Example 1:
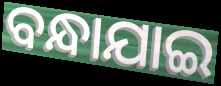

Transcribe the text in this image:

ବନ୍ଧାଯାଇ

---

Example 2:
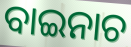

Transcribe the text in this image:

ବାଇନାଚ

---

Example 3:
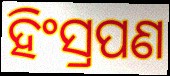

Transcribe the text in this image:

ହିଂସ୍ରପଣ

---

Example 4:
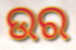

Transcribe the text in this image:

ଉର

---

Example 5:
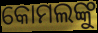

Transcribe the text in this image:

କୋମଲଙ୍କୁ